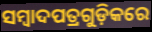
ସମ୍ୱାଦପତ୍ରଗୁଡ଼ିକରେ